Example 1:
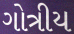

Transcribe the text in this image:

ગોત્રીય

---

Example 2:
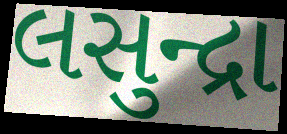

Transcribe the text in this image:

લસુન્દ્રા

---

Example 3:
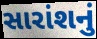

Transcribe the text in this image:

સારાંશનું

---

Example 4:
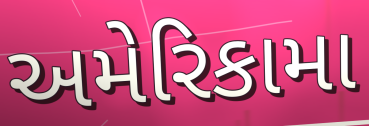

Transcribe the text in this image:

અમેરિકામા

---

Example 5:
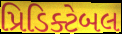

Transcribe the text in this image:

પ્રિડિક્ટેબલ